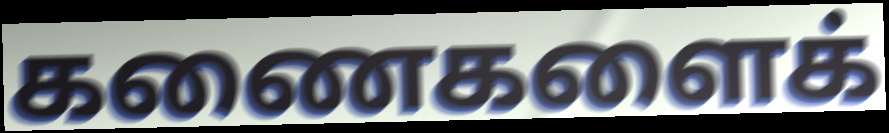
கணைகளைக்